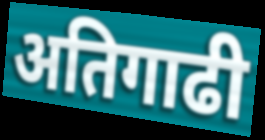
अतिगाढी